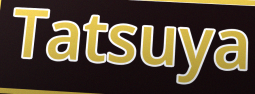
Tatsuya